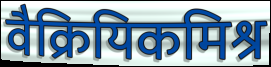
वैक्रियिकमिश्र